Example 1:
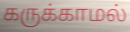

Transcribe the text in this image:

கருக்காமல்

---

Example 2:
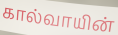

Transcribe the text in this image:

கால்வாயின்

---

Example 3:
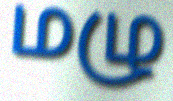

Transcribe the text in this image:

மழு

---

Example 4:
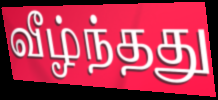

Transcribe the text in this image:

வீழ்ந்தது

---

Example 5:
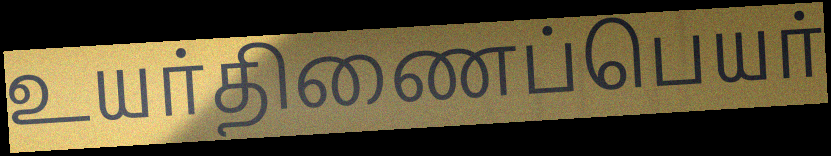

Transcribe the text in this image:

உயர்திணைப்பெயர்